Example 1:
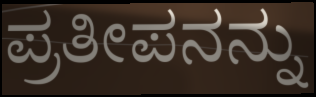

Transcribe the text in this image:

ಪ್ರತೀಪನನ್ನು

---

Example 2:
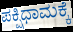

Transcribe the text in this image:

ಪಕ್ಷಿಧಾಮಕ್ಕೆ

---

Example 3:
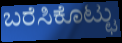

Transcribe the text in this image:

ಬರೆಸಿಕೊಟ್ಟು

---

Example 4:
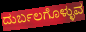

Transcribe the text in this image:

ದುರ್ಬಲಗೊಳ್ಳುವ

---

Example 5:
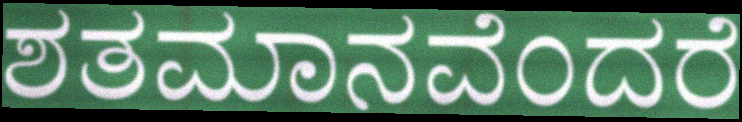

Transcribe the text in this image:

ಶತಮಾನವೆಂದರೆ